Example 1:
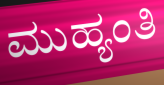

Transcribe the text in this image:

ಮುಹ್ಯಂತಿ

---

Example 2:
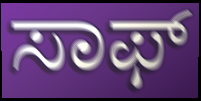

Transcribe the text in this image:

ಸಾಫ್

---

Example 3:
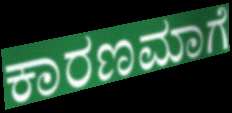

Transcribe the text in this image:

ಕಾರಣಮಾಗೆ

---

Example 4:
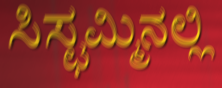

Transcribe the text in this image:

ಸಿಸ್ಟಮ್ಮಿನಲ್ಲಿ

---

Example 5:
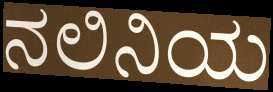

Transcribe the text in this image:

ನಲಿನಿಯ